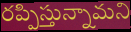
రప్పిస్తున్నామని